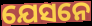
ଯେସନେ